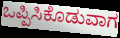
ಒಪ್ಪಿಸಿಕೊಡುವಾಗ